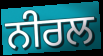
ਨੀਰਲ